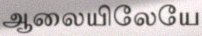
ஆலையிலேயே